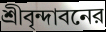
শ্রীবৃন্দাবনের